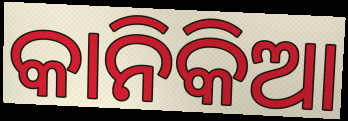
କାନିକିଆ